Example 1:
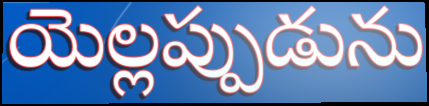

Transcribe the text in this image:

యెల్లప్పుడును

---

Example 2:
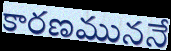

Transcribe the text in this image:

కారణముననే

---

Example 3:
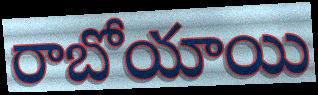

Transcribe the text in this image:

రాబోయాయి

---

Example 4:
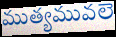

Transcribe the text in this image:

ముత్యమువలె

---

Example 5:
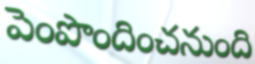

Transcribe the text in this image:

పెంపొందించనుంది